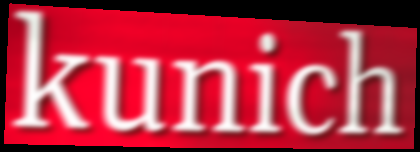
kunich